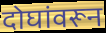
दोघांवरून